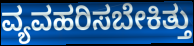
ವ್ಯವಹರಿಸಬೇಕಿತ್ತು